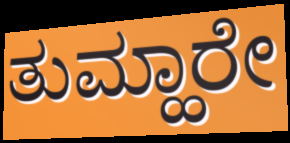
ತುಮ್ಹಾರೇ